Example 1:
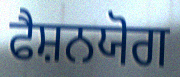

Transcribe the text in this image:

ਫੈਸ਼ਨਯੋਗ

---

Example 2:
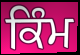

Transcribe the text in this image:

ਕਿੰਮ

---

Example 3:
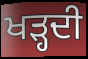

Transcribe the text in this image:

ਖੜ੍ਹਦੀ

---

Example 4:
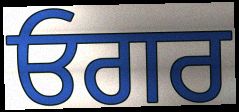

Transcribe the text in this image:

ਓਗਰ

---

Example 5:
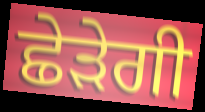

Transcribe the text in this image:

ਛੇੜੇਗੀ